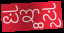
ಪಞ್ಹಸ್ಸ